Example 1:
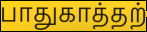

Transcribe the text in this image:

பாதுகாத்தற்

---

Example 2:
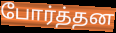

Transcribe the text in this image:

போர்த்தன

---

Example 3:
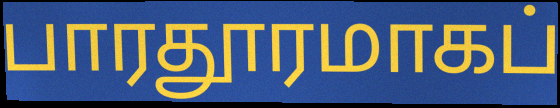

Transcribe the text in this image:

பாரதூரமாகப்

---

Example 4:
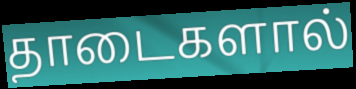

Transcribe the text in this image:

தாடைகளால்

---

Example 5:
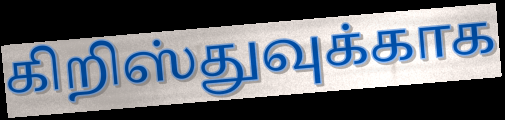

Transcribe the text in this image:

கிறிஸ்துவுக்காக